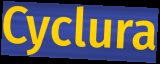
Cyclura